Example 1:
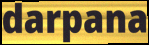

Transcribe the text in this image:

darpana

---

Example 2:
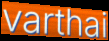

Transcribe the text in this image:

varthai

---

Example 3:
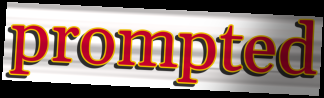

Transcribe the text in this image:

prompted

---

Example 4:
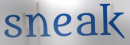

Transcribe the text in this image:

sneak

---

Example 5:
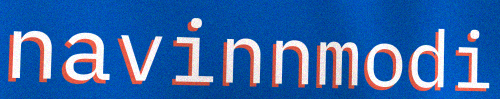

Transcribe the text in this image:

navinnmodi